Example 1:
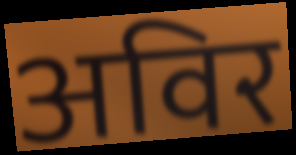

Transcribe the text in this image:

अविर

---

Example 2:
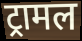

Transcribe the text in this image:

ट्रामल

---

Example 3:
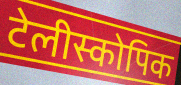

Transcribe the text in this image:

टेलीस्कोपिक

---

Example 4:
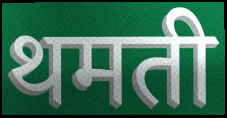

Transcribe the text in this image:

थमती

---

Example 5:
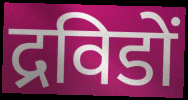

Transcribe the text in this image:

द्रविडों